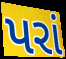
પરાં